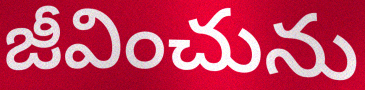
జీవించును